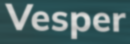
Vesper